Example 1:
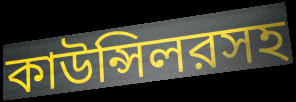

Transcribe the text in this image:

কাউন্সিলরসহ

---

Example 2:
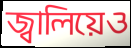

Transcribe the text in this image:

জ্বালিয়েও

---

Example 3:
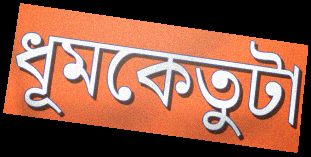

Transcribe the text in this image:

ধূমকেতুটা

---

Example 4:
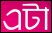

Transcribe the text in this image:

এটা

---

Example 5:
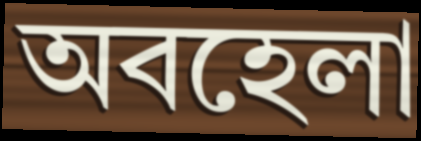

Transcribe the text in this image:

অবহেলা